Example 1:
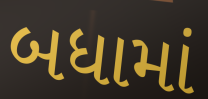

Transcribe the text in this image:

બધામાં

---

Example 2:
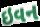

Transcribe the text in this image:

ઇવન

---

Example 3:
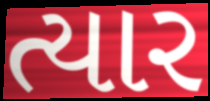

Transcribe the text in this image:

ત્યાર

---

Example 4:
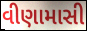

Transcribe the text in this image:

વીણામાસી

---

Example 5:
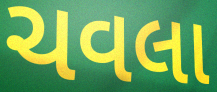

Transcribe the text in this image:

ચવલા